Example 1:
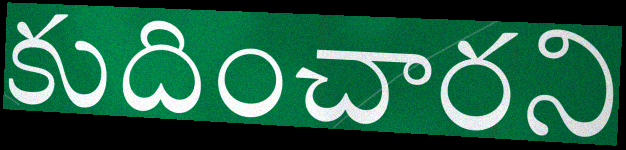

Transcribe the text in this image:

కుదించారని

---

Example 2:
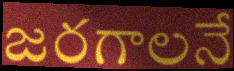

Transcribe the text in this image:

జరగాలనే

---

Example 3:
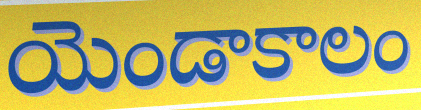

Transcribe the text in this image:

యెండాకాలం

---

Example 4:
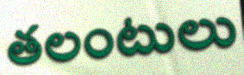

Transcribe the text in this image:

తలంటులు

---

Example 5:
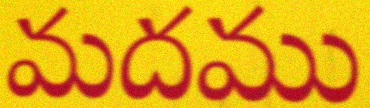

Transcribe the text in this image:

మదము